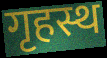
गृहस्थ